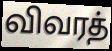
விவரத்